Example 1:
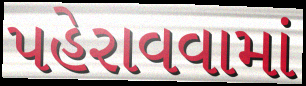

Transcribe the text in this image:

પહેરાવવામાં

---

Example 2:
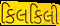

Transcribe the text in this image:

કિલકિલી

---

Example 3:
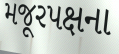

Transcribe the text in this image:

મજૂરપક્ષના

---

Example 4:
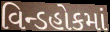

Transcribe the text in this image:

વિન્ડહોકમાં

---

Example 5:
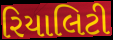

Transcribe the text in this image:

રિયાલિટી